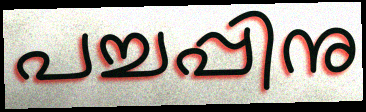
പച്ചപ്പിനു